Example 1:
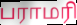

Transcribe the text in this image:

பராமரி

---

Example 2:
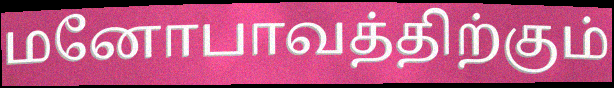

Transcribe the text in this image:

மனோபாவத்திற்கும்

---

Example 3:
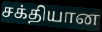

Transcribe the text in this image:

சக்தியான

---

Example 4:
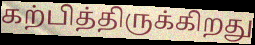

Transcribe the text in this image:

கற்பித்திருக்கிறது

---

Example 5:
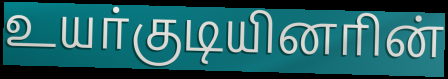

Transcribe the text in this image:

உயர்குடியினரின்